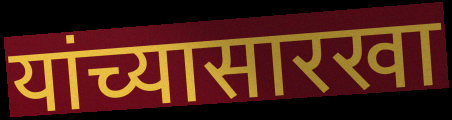
यांच्यासारखा